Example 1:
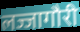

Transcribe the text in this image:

लज्जागौरी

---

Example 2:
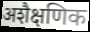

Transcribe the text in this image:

अशैक्षणिक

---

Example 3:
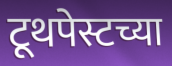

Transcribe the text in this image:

टूथपेस्टच्या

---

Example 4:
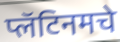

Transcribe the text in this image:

प्लॅटिनमचे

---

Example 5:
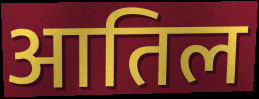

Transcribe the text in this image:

आतिल